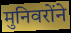
मुनिवरोंने